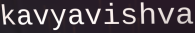
kavyavishva